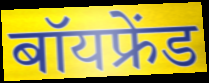
बॉयफ्रेंड